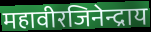
महावीरजिनेन्द्राय